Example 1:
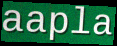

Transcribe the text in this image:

aapla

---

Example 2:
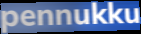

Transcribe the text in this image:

pennukku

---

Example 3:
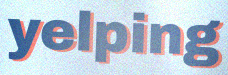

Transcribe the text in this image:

yelping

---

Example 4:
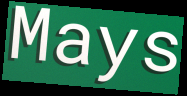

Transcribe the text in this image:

Mays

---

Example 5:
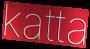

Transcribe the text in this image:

katta